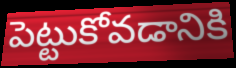
పెట్టుకోవడానికి